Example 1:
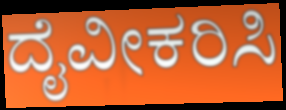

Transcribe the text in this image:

ದೈವೀಕರಿಸಿ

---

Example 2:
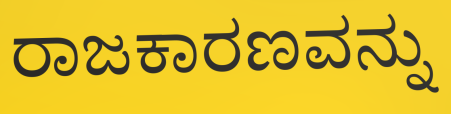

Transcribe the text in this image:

ರಾಜಕಾರಣವನ್ನು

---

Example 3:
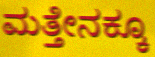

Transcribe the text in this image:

ಮತ್ತೇನಕ್ಕೂ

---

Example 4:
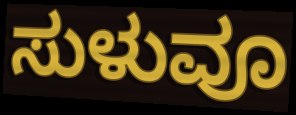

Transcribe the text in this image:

ಸುಳುವೂ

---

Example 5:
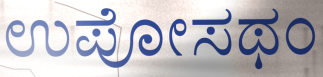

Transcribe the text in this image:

ಉಪೋಸಥಂ